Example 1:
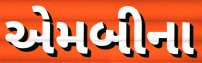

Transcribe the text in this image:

એમબીના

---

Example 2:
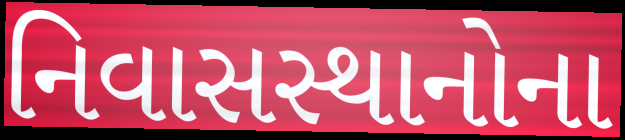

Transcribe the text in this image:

નિવાસસ્થાનોના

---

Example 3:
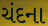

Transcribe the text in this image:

ચંદના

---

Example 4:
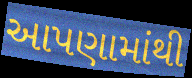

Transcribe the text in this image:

આપણામાંથી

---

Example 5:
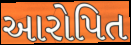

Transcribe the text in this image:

આરોપિત